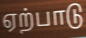
ஏற்பாடு